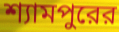
শ্যামপুরের